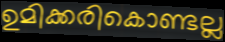
ഉമിക്കരികൊണ്ടല്ല